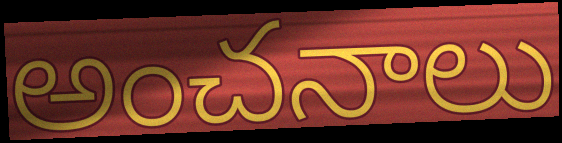
అంచనాలు